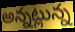
అన్నట్లున్న